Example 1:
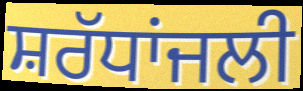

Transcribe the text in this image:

ਸ਼ਰੱਧਾਂਜਲੀ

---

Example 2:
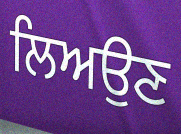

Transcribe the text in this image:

ਲਿਅਉਣ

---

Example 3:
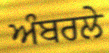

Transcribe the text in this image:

ਅੰਬਰਲੇ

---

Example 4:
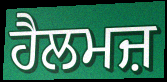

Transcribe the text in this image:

ਹੈਲਮਜ਼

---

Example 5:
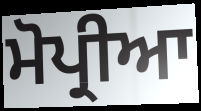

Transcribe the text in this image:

ਮੋਪ੍ਰੀਆ